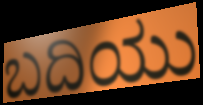
ಬದಿಯು